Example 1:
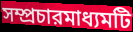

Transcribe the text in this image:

সম্প্রচারমাধ্যমটি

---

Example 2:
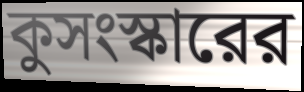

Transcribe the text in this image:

কুসংস্কারের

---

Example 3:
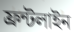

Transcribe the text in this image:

ফ্রন্টলাইন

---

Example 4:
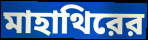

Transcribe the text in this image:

মাহাথিরের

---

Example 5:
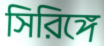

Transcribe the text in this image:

সিরিঙ্গে